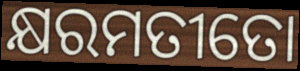
କ୍ଷରମତୀତୋ